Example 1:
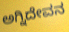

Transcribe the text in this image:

ಅಗ್ನಿದೇವನ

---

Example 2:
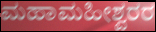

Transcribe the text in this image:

ಮಹಾಮಹೀಶ್ವರರ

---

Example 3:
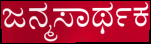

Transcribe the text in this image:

ಜನ್ಮಸಾರ್ಥಕ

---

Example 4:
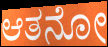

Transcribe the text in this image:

ಆತನೋ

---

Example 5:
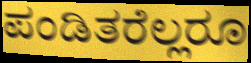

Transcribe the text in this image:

ಪಂಡಿತರೆಲ್ಲರೂ